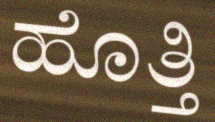
ಹೊತ್ತಿ